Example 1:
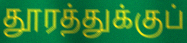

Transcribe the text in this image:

தூரத்துக்குப்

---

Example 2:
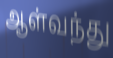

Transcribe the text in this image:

ஆள்வந்து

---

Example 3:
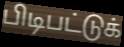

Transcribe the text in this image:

பிடிபட்டுக்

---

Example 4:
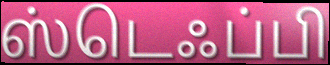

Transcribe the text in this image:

ஸ்டெஃப்பி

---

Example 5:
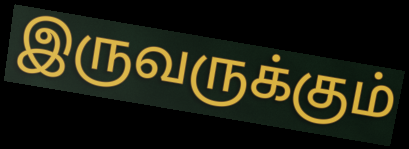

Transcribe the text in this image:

இருவருக்கும்